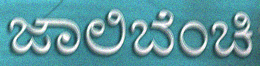
ಜಾಲಿಬೆಂಚಿ